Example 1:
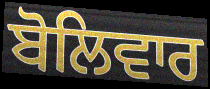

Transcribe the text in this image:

ਬੋਲਿਵਾਰ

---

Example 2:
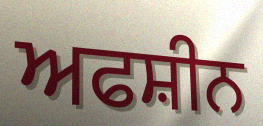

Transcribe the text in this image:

ਅਫਸ਼ੀਨ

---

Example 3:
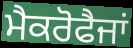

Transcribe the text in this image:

ਮੈਕਰੋਫੈਜਾਂ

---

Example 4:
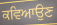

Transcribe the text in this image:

ਕਵਿਆਉਣ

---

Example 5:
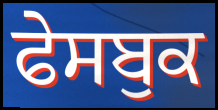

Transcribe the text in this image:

ਫੇਸਬੁਕ